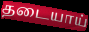
தடையாய்